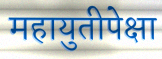
महायुतीपेक्षा